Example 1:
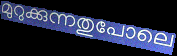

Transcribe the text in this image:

മുറുക്കുന്നതുപോലെ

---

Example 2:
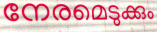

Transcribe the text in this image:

നേരമെടുക്കും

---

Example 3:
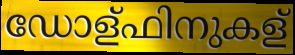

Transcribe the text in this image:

ഡോള്ഫിനുകള്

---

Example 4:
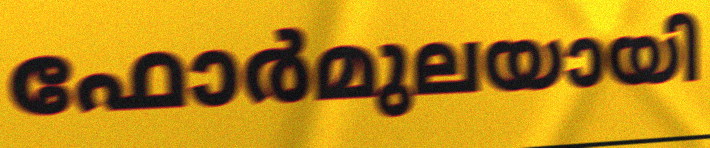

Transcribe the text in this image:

ഫോർമുലയായി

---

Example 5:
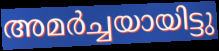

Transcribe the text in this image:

അമർച്ചയായിട്ടു